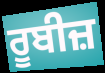
ਰੂਬੀਜ਼